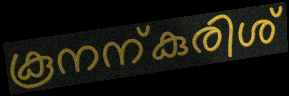
കൂനന്കുരിശ്